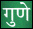
गुणे